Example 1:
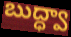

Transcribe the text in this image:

బుద్ధ్వా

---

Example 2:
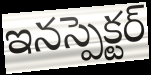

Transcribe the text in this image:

ఇనస్పెక్టర్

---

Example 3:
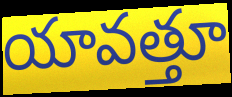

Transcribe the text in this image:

యావత్తూ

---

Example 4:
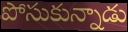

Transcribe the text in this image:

పోసుకున్నాడు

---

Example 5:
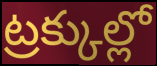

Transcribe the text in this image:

ట్రక్కుల్లో